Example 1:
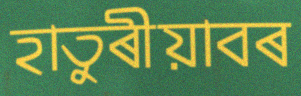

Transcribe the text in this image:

হাতুৰীয়াবৰ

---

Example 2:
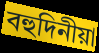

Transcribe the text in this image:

বহুদিনীয়া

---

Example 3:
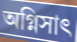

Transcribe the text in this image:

অগ্নিসাৎ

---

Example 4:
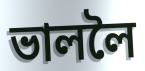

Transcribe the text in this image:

ভাললৈ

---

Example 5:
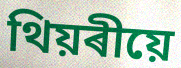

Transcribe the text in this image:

থিয়ৰীয়ে